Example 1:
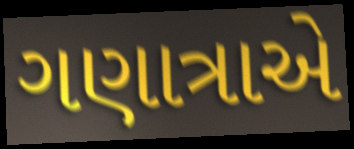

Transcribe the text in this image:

ગણાત્રાએ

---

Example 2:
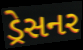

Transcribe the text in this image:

ડ્રેસનર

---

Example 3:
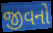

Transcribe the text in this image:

જીવનો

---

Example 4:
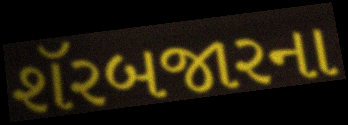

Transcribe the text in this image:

શૅરબજારના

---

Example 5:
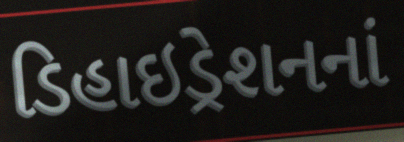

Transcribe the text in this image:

ડિહાઇડ્રેશનનાં